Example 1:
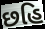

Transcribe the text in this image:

છહિ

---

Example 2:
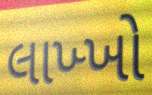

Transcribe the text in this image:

લાખ્ખો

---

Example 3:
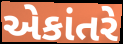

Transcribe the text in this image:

એકાંતરે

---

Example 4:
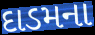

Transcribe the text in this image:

દાડમના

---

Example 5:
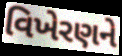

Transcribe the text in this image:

વિખેરણને